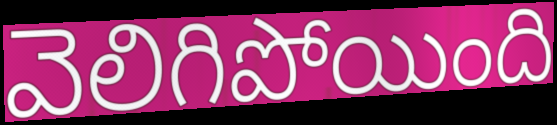
వెలిగిపోయింది